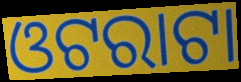
ଓଟରାଟା